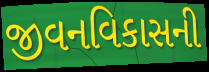
જીવનવિકાસની